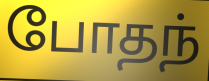
போதந்